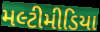
મલ્ટીમીડિયા